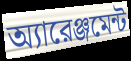
অ্যারেঞ্জমেন্ট